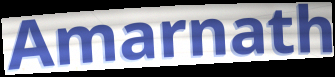
Amarnath